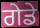
ਗੇਡੇ